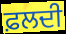
ਫ਼ਲਦੀ